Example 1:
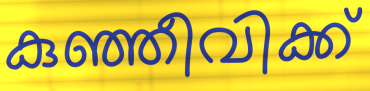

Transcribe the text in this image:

കുഞ്ഞീവിക്ക്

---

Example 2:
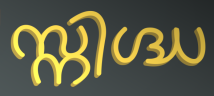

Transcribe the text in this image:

സ്നിഗ്ദ്ധ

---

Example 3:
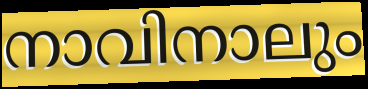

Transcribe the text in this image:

നാവിനാലും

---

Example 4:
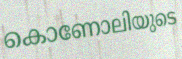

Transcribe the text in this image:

കൊണോലിയുടെ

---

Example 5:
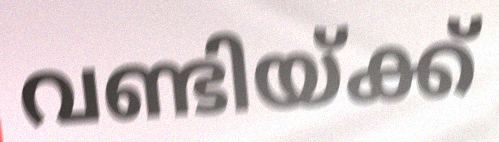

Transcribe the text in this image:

വണ്ടിയ്ക്ക്